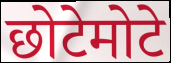
छोटेमोटे